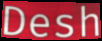
Desh